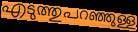
എടുത്തുപറഞ്ഞുള്ള